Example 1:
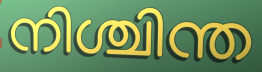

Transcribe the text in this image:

നിശ്ചിന്ത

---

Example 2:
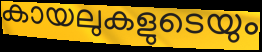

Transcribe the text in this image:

കായലുകളുടെയും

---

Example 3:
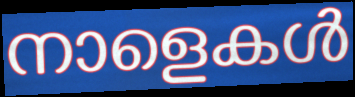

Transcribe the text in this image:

നാളെകൾ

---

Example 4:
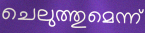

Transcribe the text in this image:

ചെലുത്തുമെന്ന്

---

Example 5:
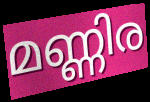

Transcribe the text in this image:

മണ്ണിര